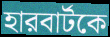
হারবার্টকে